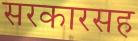
सरकारसह